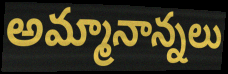
అమ్మానాన్నలు